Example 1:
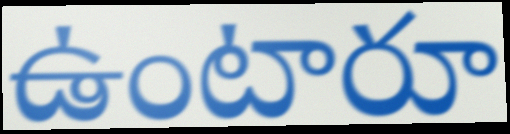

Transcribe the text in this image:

ఉంటారూ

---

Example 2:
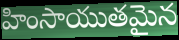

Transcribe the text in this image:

హింసాయుతమైన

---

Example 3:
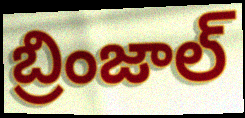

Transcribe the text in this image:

బ్రింజాల్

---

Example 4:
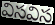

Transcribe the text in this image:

విసవిస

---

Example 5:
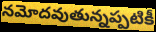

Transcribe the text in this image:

నమోదవుతున్నప్పటికీ